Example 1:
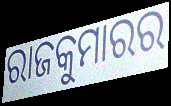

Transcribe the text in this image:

ରାଜକୁମାରର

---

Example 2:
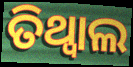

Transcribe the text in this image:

ତିଥ୍ୱାଲ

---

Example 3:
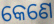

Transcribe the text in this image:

କେଣେ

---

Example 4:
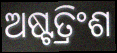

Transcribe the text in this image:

ଅଷ୍ଟତ୍ରିଂଶ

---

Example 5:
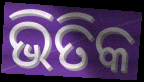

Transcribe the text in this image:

ଭିତିକ